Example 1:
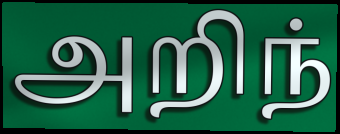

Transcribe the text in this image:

அறிந்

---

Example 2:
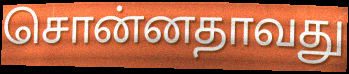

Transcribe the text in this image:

சொன்னதாவது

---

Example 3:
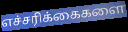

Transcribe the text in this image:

எச்சரிக்கைகளை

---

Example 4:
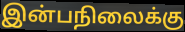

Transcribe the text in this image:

இன்பநிலைக்கு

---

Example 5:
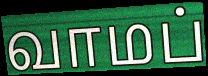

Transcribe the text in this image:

வாமப்